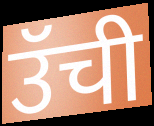
उॅची